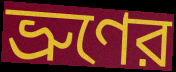
ভ্রুণের